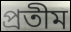
প্রতীম